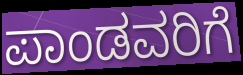
ಪಾಂಡವರಿಗೆ